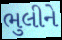
ભુલીને